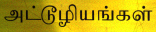
அட்டூழியங்கள்